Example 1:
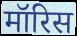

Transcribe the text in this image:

मॉरिस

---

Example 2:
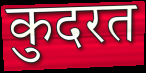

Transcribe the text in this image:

कुदरत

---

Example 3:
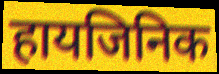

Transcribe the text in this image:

हायजिनिक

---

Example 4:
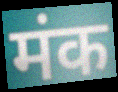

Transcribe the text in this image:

मंक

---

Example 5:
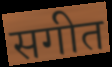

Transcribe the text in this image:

सगीत